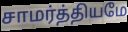
சாமர்த்தியமே